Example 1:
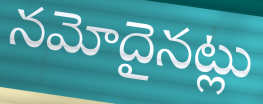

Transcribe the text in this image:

నమోదైనట్లు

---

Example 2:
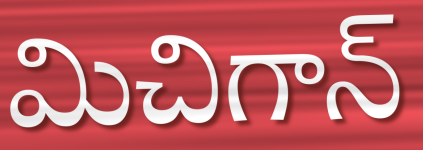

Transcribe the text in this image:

మిచిగాన్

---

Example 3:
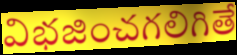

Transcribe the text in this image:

విభజించగలిగితే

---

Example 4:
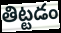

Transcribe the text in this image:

తిట్టడం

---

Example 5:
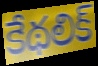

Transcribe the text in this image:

కేథలిక్